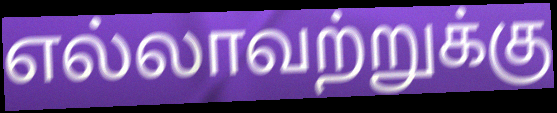
எல்லாவற்றுக்கு